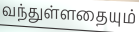
வந்துள்ளதையும்